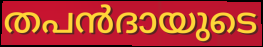
തപൻദായുടെ